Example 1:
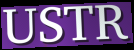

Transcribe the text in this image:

USTR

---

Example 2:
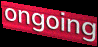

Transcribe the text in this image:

ongoing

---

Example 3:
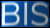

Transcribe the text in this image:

BIS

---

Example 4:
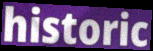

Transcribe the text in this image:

historic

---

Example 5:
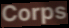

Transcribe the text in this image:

Corps